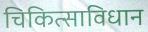
चिकित्साविधान